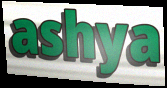
ashya